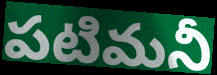
పటిమనీ